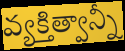
వ్యక్తిత్వాన్నీ